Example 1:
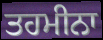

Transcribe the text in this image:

ਤਹਮੀਨਾ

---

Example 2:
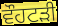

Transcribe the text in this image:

ਵੌਹਟੜੀ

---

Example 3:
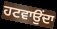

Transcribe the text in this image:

ਹਟਵਾਉਂਦਾ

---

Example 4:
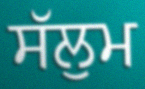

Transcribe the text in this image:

ਸੱਲੁਮ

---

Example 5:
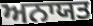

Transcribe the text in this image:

ਅਨਾਯਤ